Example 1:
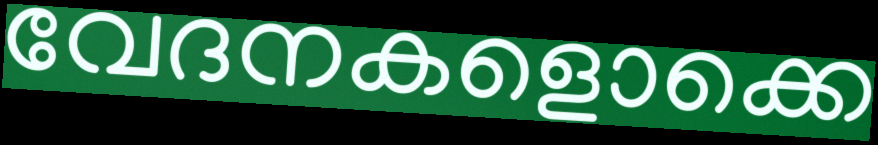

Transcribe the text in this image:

വേദനകളൊക്കെ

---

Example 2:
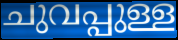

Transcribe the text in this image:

ചുവപ്പുള്ള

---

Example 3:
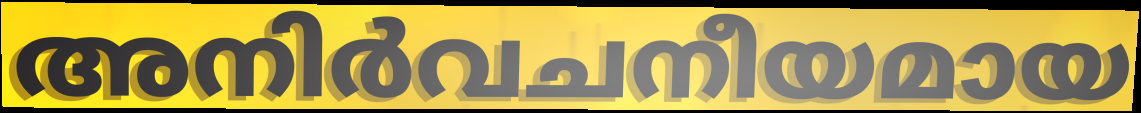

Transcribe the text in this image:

അനിർവചനീയമായ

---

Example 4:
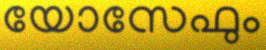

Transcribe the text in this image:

യോസേഫും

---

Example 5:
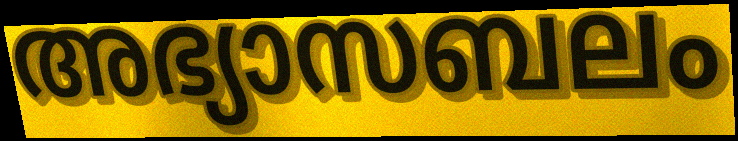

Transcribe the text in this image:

അഭ്യാസബലം